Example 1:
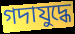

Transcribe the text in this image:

গদাযুদ্ধে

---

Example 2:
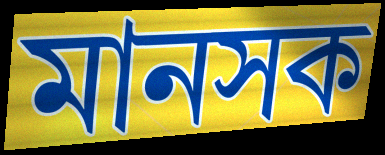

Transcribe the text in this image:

মানসক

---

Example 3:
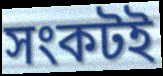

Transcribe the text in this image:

সংকটই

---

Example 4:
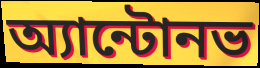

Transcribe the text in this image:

অ্যান্টোনভ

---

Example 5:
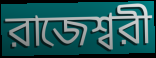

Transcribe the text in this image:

রাজেশ্বরী